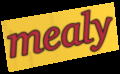
mealy